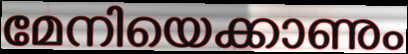
മേനിയെക്കാണും